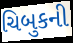
ચિબુકની